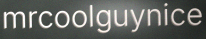
mrcoolguynice